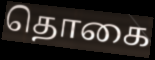
தொகை